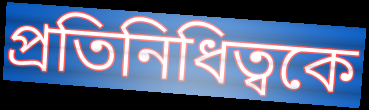
প্রতিনিধিত্বকে